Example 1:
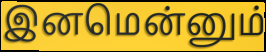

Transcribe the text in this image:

இனமென்னும்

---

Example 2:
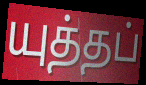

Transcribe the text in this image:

யுத்தப்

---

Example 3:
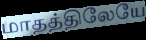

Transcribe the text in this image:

மாதத்திலேயே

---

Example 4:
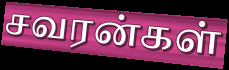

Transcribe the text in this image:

சவரன்கள்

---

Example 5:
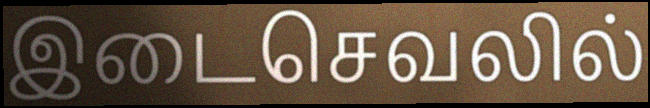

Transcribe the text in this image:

இடைசெவலில்